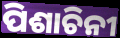
ପିଶାଚିନୀ